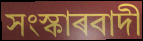
সংস্কাৰবাদী